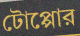
টোপ্পোর